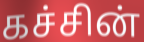
கச்சின்